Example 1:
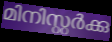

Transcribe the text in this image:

മിനിസ്റ്റർക്കു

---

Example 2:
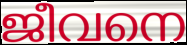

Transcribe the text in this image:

ജീവനെ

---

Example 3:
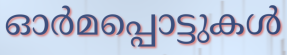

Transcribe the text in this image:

ഓർമപ്പൊട്ടുകൾ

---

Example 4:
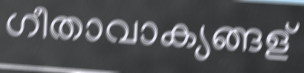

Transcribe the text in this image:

ഗീതാവാക്യങ്ങള്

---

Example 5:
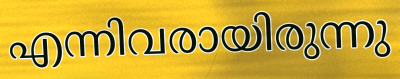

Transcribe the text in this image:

എന്നിവരായിരുന്നു